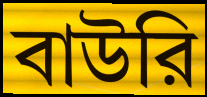
বাউরি